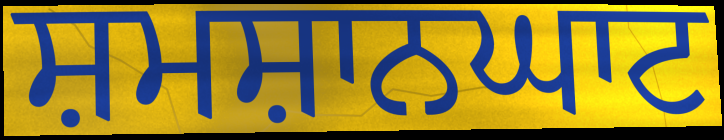
ਸ਼ਮਸ਼ਾਨਘਾਟ